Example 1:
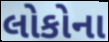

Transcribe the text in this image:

લોકોના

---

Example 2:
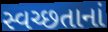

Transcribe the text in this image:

સ્વચ્છતાનાં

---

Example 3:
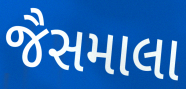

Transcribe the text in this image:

જૈસમાલા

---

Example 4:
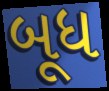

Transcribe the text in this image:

બૂધ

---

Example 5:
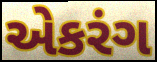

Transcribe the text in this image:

એકરંગ